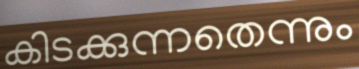
കിടക്കുന്നതെന്നും